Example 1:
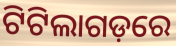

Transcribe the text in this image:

ଟିଟିଲାଗଡ଼ରେ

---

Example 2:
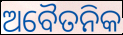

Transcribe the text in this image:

ଅବୈତନିକ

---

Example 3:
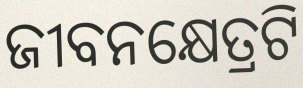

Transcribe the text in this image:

ଜୀବନକ୍ଷେତ୍ରଟି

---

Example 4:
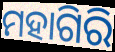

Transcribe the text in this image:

ମହାଗିରି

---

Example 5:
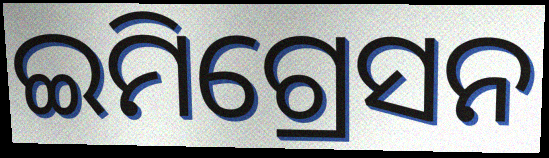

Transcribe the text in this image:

ଇମିଗ୍ରେସନ